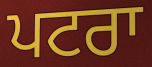
ਪਟਰਾ